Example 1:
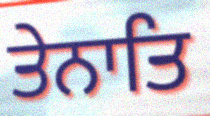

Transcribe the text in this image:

ਤੇਨਾਤਿ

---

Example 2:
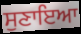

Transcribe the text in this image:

ਸੁਣਾਇਆ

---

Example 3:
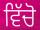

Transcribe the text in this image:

ਵਿੱਚੋ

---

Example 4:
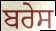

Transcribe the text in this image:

ਬਰੇਸ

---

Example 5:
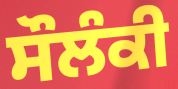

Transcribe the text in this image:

ਸੌਲੰਕੀ